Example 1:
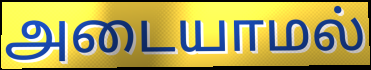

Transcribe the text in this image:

அடையாமல்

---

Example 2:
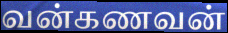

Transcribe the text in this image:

வன்கணவன்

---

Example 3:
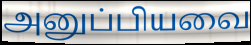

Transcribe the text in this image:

அனுப்பியவை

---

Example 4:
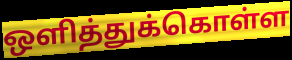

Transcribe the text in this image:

ஒளித்துக்கொள்ள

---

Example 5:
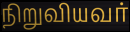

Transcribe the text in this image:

நிறுவியவர்